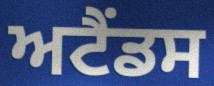
ਅਟੈਂਡਸ